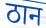
ठान